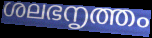
ശലഭനൃത്തം